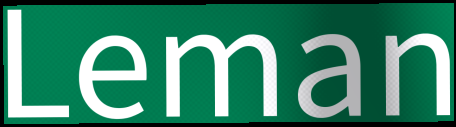
Leman